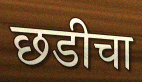
छडीचा